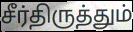
சீர்திருத்தும்